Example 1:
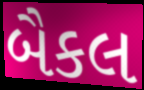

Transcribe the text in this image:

બૈકલ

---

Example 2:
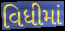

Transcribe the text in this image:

વિધીમાં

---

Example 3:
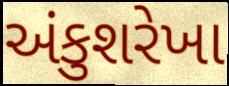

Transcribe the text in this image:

અંકુશરેખા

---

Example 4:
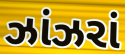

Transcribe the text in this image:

ઝાંઝરાં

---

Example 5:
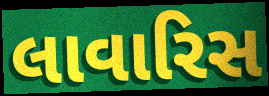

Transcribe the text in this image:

લાવારિસ